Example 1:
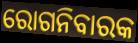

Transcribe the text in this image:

ରୋଗନିବାରକ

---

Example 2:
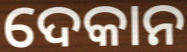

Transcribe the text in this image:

ଦେକାନ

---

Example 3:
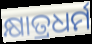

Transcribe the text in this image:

କ୍ଷାତ୍ରଧର୍ମ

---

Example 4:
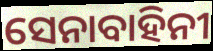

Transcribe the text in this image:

ସେନାବାହିନୀ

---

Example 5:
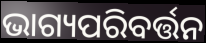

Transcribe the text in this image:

ଭାଗ୍ୟପରିବର୍ତ୍ତନ